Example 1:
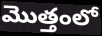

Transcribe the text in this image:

మొత్తంలో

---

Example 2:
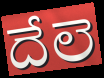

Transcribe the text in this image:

దేలె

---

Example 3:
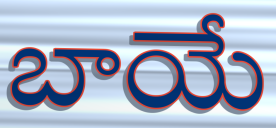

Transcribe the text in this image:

బాయే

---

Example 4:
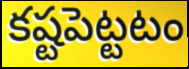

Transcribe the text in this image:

కష్టపెట్టటం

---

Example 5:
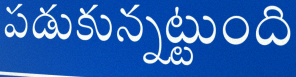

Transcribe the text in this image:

పడుకున్నట్టుంది